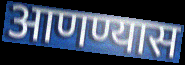
आणण्यास